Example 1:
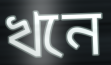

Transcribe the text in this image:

খনে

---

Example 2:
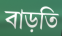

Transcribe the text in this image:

বাড়তি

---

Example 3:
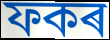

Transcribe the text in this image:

ফকৰ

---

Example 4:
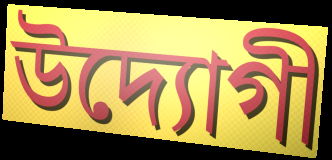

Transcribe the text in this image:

উদ্যোগী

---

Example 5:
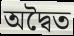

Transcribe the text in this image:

অদ্বৈত